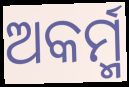
ଅକର୍ମ୍ମ